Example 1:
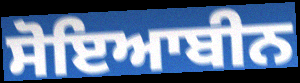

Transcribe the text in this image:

ਸੋਇਆਬੀਨ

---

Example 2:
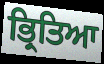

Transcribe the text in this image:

ਭ੍ਰਿਤਿਆ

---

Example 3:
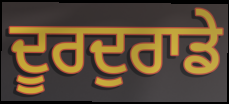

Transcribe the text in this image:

ਦੂਰਦੁਰਾਡੇ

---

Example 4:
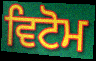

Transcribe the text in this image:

ਵਿਟੋਮ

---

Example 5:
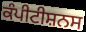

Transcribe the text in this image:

ਕੰਪੀਟੀਸ਼ਨਸ